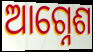
ଆଗ୍ନେଶ